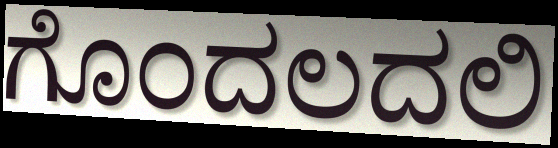
ಗೊಂದಲದಲಿ